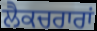
ਲੈਕਚਰਾਰਾਂ